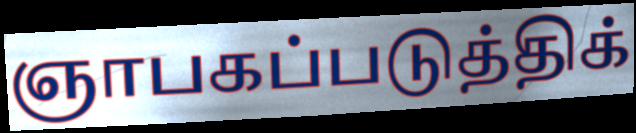
ஞாபகப்படுத்திக்